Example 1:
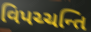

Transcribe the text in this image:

વિપચ્ચન્તિ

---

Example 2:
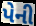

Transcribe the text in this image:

પેની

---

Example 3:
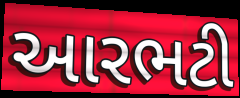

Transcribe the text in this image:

આરભટી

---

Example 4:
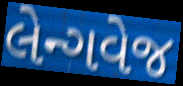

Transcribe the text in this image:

લેન્ગવેજ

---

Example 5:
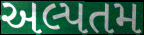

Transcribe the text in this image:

અલ્પતમ